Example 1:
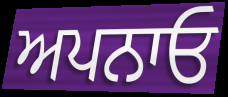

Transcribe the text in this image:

ਅਪਨਾਓ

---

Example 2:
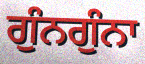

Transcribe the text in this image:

ਗੁੰਨਗੁੰਨਾ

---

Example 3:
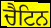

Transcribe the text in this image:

ਚੈਟਿਨ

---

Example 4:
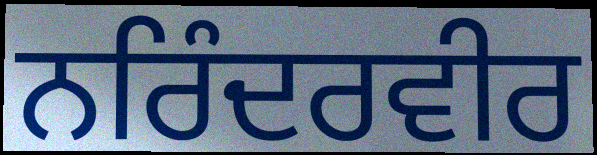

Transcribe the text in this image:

ਨਰਿੰਦਰਵੀਰ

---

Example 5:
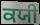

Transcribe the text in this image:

ਕਯੀ